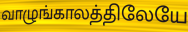
வாழுங்காலத்திலேயே